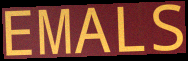
EMALS